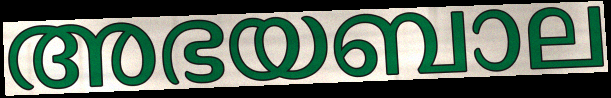
അഭയബാല